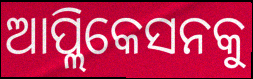
ଆପ୍ଲିକେସନକୁ